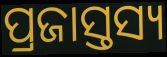
ପ୍ରଜାସ୍ତସ୍ୟ